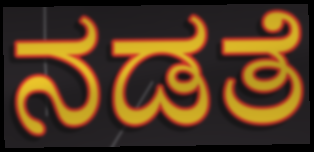
ನಡತೆ